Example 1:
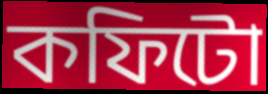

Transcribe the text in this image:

কফিটো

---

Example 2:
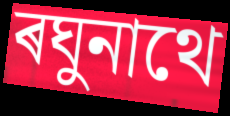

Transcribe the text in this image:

ৰঘুনাথে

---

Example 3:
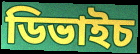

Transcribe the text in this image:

ডিভাইচ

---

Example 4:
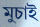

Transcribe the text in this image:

মুচাই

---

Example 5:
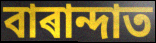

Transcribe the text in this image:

বাৰান্দাত